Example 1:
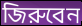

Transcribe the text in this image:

জিরুবেন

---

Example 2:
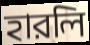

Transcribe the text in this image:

হারলি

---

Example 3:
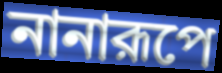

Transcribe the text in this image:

নানারূপে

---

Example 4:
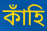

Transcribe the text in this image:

কাঁহি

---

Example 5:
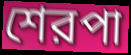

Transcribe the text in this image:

শেরপা